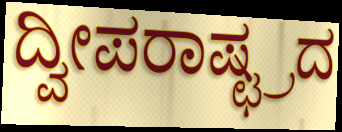
ದ್ವೀಪರಾಷ್ಟ್ರದ